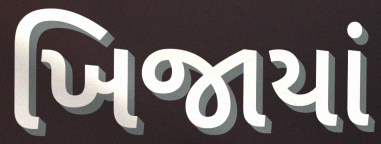
ખિજાયાં